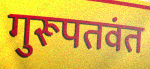
गुरूपतवंत